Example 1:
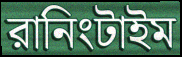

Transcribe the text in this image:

রানিংটাইম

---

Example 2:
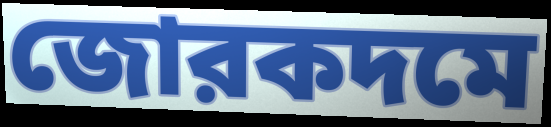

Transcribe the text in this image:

জোরকদমে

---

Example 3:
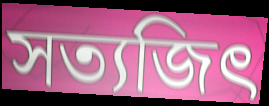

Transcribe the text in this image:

সত্যজিৎ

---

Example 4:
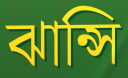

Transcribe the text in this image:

ঝান্সি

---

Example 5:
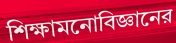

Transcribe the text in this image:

শিক্ষামনোবিজ্ঞানের